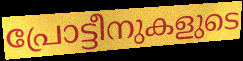
പ്രോട്ടീനുകളുടെ